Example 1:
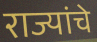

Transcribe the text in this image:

राज्यांचे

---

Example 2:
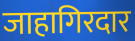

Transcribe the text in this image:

जाहागिरदार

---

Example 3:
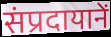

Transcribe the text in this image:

संप्रदायानें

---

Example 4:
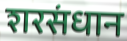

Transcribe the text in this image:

शरसंधान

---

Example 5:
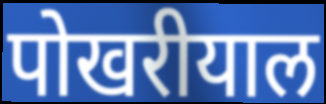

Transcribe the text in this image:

पोखरीयाल